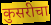
कुसरीचा